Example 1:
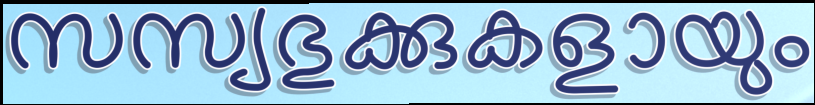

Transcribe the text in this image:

സസ്യഭുക്കുകളായും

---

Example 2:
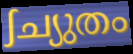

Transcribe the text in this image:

ഽച്യുതം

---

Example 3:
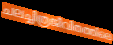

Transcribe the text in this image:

ചലച്ചിത്രജീവിതത്തിലെ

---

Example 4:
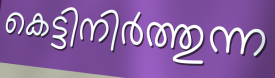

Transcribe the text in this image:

കെട്ടിനിർത്തുന്ന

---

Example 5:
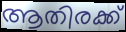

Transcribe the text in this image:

ആതിരക്ക്